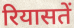
रियासतें